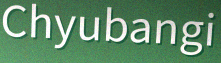
Chyubangi